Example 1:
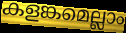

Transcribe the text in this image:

കളങ്കമെല്ലാം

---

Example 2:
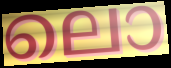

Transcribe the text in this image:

ലൊ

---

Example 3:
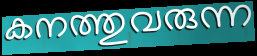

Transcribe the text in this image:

കനത്തുവരുന്ന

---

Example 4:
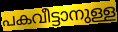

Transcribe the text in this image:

പകവീട്ടാനുള്ള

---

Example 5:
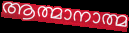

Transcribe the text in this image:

ആത്മാനാത്മ